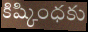
కిష్కింధకు